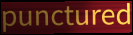
punctured